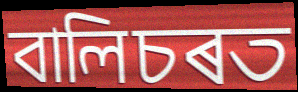
বালিচৰত